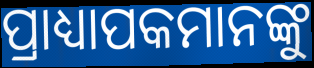
ପ୍ରାଧ୍ୟାପକମାନଙ୍କୁ